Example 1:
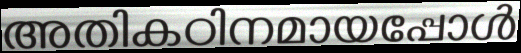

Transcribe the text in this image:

അതികഠിനമായപ്പോൾ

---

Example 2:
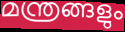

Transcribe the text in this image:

മന്ത്രങ്ങളും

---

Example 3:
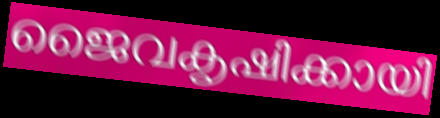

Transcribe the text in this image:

ജൈവകൃഷിക്കായി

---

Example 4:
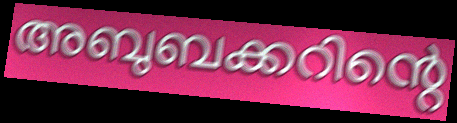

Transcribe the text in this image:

അബുബക്കറിന്റെ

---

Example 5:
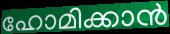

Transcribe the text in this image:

ഹോമിക്കാൻ